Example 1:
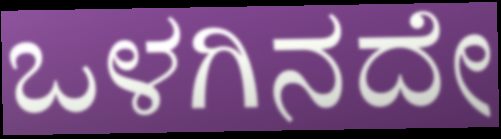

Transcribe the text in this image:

ಒಳಗಿನದೇ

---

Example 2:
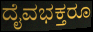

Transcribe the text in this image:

ದೈವಭಕ್ತರೂ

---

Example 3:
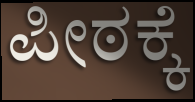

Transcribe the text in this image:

ಪೀಠಕ್ಕೆ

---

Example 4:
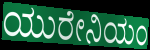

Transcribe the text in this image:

ಯುರೇನಿಯಂ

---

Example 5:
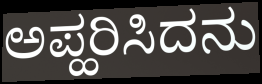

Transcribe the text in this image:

ಅಪ್ಹರಿಸಿದನು